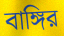
বাঙ্গির